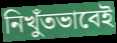
নিখুঁতভাবেই